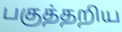
பகுத்தறிய